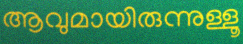
ആവുമായിരുന്നുള്ളൂ